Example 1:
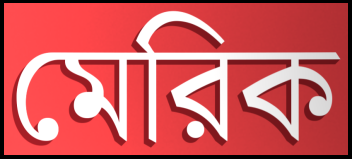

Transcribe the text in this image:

মেরিক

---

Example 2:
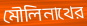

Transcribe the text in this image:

মৌলিনাথের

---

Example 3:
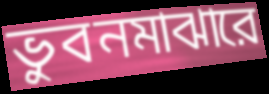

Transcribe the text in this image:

ভুবনমাঝারে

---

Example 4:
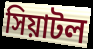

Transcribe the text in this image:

সিয়াটল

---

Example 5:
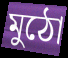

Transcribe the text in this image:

মুঠো